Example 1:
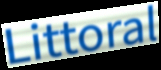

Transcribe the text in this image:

Littoral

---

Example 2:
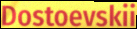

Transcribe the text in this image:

Dostoevskii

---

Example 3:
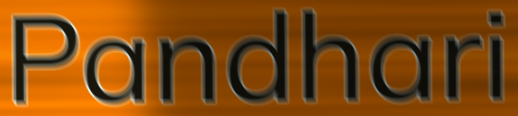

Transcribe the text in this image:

Pandhari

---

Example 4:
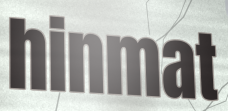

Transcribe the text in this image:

hinmat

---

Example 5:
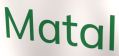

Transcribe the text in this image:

Matal